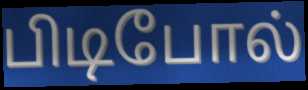
பிடிபோல்